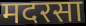
मदरसा